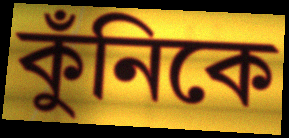
কুঁনিকে